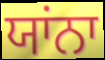
ਯਾਂਨਾ